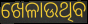
ଖେଳାଉଥିବ